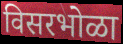
विसरभोळा